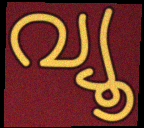
വ്യൂ